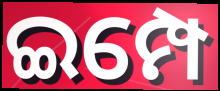
ଇମ୍ପେ